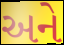
અને